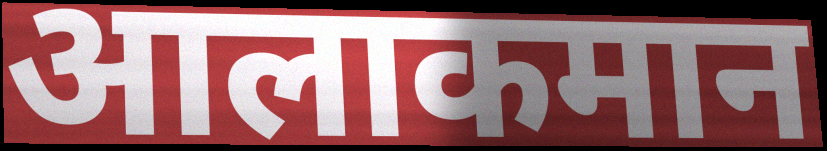
आलाकमान